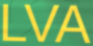
LVA